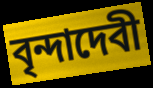
বৃন্দাদেবী